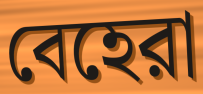
বেহেরা